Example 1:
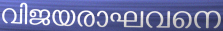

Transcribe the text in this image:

വിജയരാഘവനെ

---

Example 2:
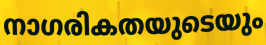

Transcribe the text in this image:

നാഗരികതയുടെയും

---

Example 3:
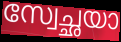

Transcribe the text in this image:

സ്വേച്ഛയാ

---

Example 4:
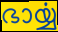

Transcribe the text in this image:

ഭാൎയ്യ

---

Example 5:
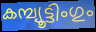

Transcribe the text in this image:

കമ്പ്യൂട്ടിംഗും